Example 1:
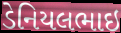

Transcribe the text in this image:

ડેનિયલભાઇ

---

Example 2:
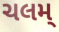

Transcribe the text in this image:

ચલમ્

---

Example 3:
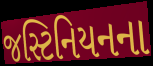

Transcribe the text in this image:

જસ્ટિનિયનના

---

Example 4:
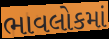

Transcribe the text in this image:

ભાવલોકમાં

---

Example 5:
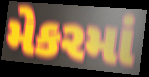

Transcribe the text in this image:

મેકરમાં